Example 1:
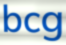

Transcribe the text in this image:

bcg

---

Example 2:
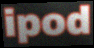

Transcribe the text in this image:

ipod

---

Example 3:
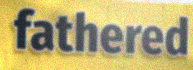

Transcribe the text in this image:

fathered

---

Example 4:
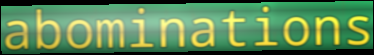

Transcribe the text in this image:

abominations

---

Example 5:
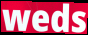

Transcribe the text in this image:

weds